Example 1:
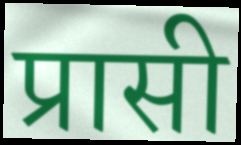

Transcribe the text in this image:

प्रासी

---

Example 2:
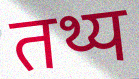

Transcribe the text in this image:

तथ्य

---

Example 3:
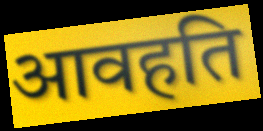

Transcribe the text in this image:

आवहति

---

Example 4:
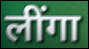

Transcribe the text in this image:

लींगा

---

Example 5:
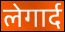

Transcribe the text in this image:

लेगार्द